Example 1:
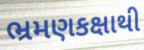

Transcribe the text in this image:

ભ્રમણકક્ષાથી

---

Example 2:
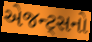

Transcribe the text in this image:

એજન્ટ્સનો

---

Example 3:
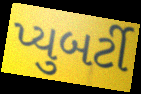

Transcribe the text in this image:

પ્યુબર્ટી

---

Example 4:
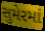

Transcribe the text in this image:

સુમેરમાં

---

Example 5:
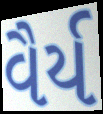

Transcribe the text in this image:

વૈર્ય